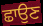
ਛਾਉਣ